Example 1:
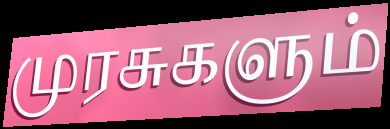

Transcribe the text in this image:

முரசுகளும்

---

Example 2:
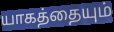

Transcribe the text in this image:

யாகத்தையும்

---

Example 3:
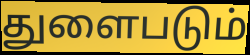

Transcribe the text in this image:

துளைபடும்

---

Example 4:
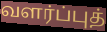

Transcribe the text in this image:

வளர்ப்புத்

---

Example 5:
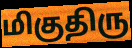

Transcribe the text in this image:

மிகுதிரு